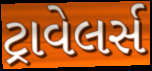
ટ્રાવેલર્સ